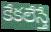
కేకలేస్తే